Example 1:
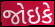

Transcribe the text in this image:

જોઇકે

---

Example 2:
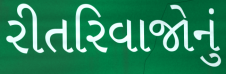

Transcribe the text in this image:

રીતરિવાજોનું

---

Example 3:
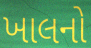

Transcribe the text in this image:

ખાલનો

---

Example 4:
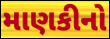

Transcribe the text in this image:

માણકીનો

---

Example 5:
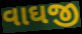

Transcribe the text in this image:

વાઘજી